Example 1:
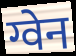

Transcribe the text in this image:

ग्वेन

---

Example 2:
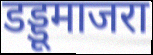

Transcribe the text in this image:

डड्डूमाजरा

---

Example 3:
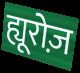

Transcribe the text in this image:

ह्यूरोज़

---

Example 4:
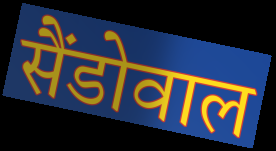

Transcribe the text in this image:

सैंडोवाल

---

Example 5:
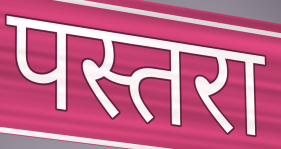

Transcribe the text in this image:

पस्तरा